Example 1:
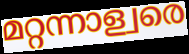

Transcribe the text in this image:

മറ്റന്നാള്വരെ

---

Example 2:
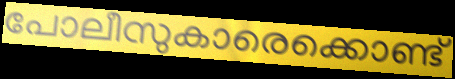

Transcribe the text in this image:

പോലീസുകാരെക്കൊണ്ട്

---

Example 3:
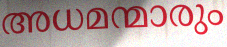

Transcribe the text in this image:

അധമന്മാരും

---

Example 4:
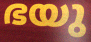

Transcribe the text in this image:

ഭയു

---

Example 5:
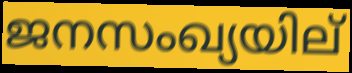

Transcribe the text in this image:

ജനസംഖ്യയില്